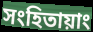
সংহিতায়াং